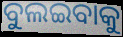
ବୁଲଇବାକୁ